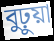
বুঢ়ুয়া